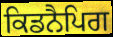
ਕਿਡਨੈਪਿਗ